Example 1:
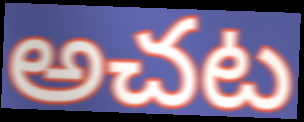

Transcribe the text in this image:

అచట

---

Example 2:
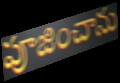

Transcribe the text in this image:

పూజించాను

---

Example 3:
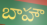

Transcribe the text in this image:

బాహౌ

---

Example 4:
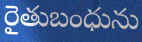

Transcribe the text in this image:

రైతుబంధును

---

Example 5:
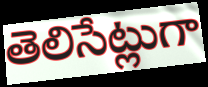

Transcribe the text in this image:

తెలిసేట్లుగా